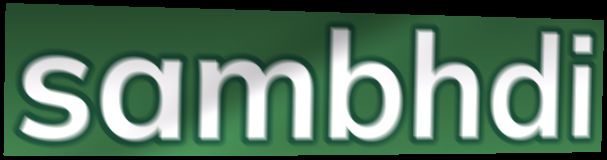
sambhdi